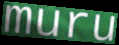
muru